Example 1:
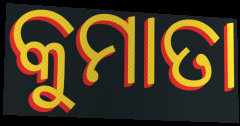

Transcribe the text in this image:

କୁମାତା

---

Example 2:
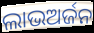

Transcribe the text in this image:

ଲାଭଅର୍ଜନ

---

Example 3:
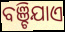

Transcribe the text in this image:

ବଞ୍ଚିଯାଏ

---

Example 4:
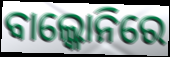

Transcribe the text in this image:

ବାଲ୍କୋନିରେ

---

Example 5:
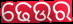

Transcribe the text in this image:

ଢେଉର